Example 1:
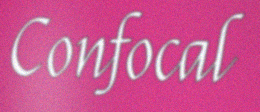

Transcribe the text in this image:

Confocal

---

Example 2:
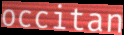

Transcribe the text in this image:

occitan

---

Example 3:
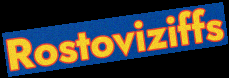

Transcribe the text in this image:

Rostoviziffs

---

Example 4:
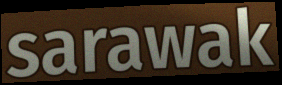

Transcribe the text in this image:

sarawak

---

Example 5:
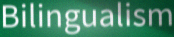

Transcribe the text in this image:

Bilingualism